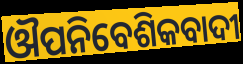
ଔପନିବେଶିକବାଦୀ